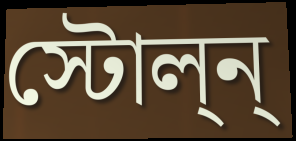
স্টোল্ন্